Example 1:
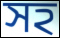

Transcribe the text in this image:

সহ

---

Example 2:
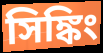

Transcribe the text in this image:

সিঙ্কিং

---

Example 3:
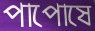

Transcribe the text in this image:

পাপোষে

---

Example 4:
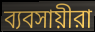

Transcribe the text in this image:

ব্যবসায়ীরা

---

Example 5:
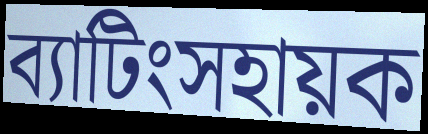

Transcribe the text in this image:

ব্যাটিংসহায়ক